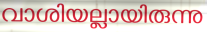
വാശിയല്ലായിരുന്നു